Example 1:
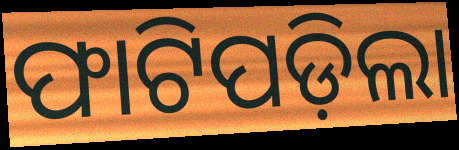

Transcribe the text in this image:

ଫାଟିପଡ଼ିଲା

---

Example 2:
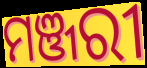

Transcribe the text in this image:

ମଞ୍ଜରୀ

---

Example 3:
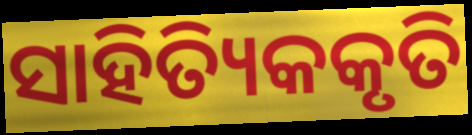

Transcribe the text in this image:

ସାହିତ୍ୟିକକୃତି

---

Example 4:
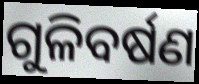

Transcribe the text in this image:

ଗୁଳିବର୍ଷଣ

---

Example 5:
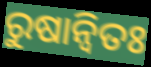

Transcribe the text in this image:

ରୁଷାନ୍ଵିତଃ